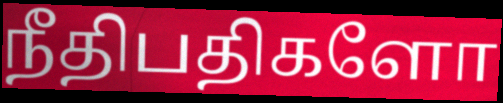
நீதிபதிகளோ